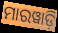
ମାରୱାଡ଼ି